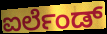
ಐರ್ಲೆಂಡ್